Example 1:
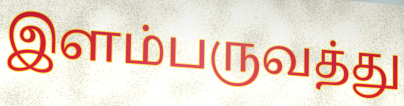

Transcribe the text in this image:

இளம்பருவத்து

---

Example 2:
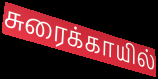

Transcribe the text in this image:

சுரைக்காயில்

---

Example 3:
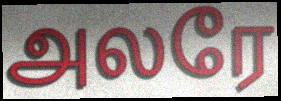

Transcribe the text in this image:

அலரே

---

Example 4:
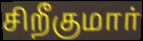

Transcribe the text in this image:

சிறீகுமார்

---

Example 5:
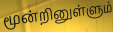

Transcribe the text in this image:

மூன்றினுள்ளும்